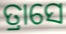
ତ୍ରାସେ